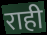
राही